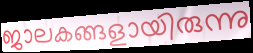
ജാലകങ്ങളായിരുന്നു